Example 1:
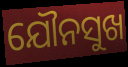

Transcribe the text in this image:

ଯୌନସୁଖ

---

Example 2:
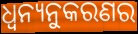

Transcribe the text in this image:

ଧ୍ବନ୍ୟନୁକରଣର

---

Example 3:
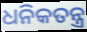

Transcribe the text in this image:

ଧନିକତନ୍ତ୍ର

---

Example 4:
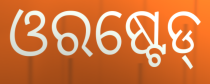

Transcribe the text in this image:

ଓରଷ୍ଟେଡ୍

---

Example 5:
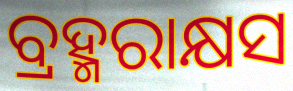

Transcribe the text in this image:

ବ୍ରହ୍ମରାକ୍ଷସ